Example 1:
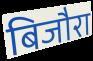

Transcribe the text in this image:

बिजौरा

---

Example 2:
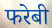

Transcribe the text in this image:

फरेबी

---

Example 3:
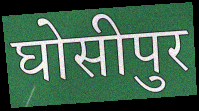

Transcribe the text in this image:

घोसीपुर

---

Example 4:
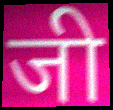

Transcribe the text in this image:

जी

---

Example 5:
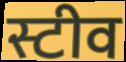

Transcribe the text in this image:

स्‍टीव